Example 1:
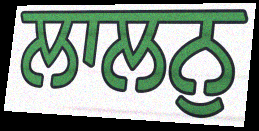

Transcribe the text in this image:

ਲਾਲਨੁ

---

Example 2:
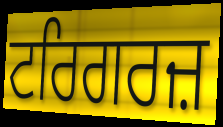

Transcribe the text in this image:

ਟਰਿਗਰਜ਼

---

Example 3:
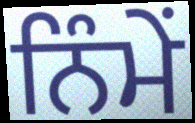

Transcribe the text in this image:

ਨਿੰਮੇਂ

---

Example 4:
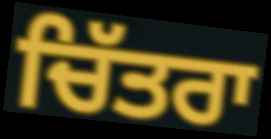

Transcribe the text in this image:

ਚਿੱਤਰਾ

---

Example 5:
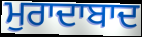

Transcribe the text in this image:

ਮੁਰਾਦਾਬਾਦ